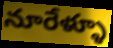
నూరేళ్ళూ